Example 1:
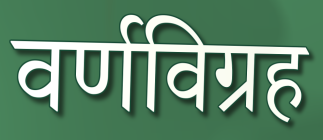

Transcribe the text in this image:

वर्णविग्रह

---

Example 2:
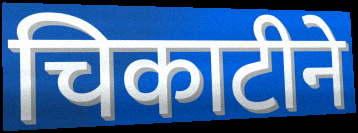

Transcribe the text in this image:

चिकाटीने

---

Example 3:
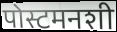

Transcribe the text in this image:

पोस्टमनशी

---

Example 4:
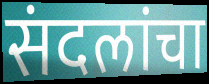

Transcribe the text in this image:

संदलांचा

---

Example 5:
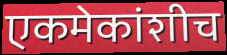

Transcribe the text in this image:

एकमेकांशीच